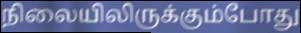
நிலையிலிருக்கும்போது